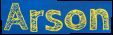
Arson